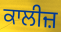
ਕਾਲੀਜ਼